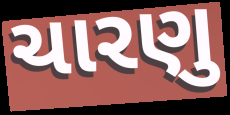
ચારણુ